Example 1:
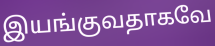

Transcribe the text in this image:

இயங்குவதாகவே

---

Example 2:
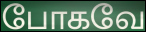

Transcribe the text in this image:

போகவே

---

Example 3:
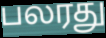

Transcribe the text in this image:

பலரது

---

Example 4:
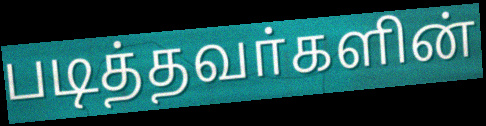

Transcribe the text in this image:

படித்தவர்களின்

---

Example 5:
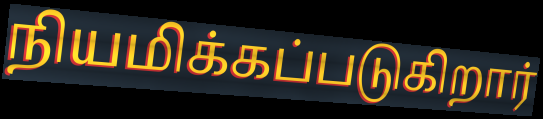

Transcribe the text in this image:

நியமிக்கப்படுகிறார்